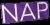
NAP